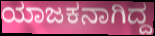
ಯಾಜಕನಾಗಿದ್ದ